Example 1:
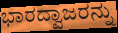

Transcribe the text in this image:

ಭಾರದ್ವಾಜರನ್ನು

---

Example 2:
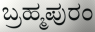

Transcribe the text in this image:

ಬ್ರಹ್ಮಪುರಂ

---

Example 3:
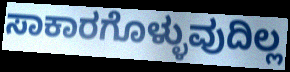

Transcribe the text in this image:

ಸಾಕಾರಗೊಳ್ಳುವುದಿಲ್ಲ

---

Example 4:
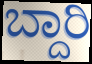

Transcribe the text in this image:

ಬ್ದಾರಿ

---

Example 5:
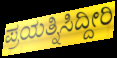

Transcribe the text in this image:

ಪ್ರಯತ್ನಿಸಿದ್ದೀರಿ